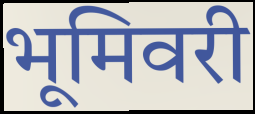
भूमिवरी